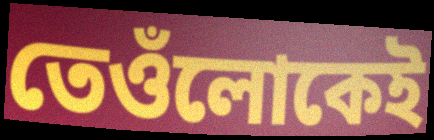
তেওঁলোকেই